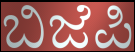
ಬಿಜೆಪಿ